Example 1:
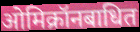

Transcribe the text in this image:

ओमिक्रॉनबाधित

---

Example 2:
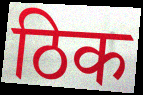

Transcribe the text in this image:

ठिक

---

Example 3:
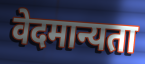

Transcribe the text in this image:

वेदमान्यता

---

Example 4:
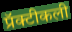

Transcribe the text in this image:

प्रॅक्टीकली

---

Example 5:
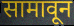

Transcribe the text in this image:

सामावून